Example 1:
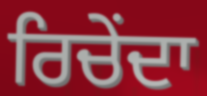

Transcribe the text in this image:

ਰਿਚੇਂਦਾ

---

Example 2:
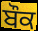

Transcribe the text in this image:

ਬੌਕ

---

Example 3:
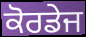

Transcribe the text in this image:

ਕੋਰਡੇਜ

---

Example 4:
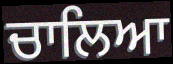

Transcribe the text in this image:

ਚਾਲਿਆ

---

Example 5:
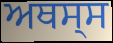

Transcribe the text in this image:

ਅਥਸ੍ਸ